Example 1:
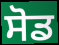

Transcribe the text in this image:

ਸੋਡ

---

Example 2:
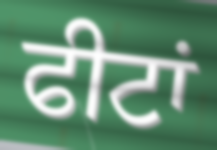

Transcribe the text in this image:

ਫੀਟਾਂ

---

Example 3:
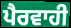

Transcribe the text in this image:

ਪੈਰਵਾਹੀ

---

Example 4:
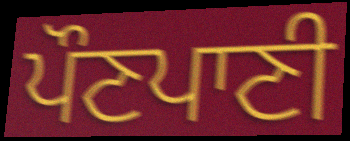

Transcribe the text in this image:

ਪੌਣਪਾਣੀ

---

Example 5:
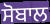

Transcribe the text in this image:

ਸੋਬਾਲ